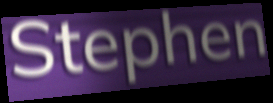
Stephen